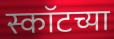
स्कॉटच्या